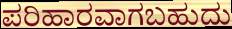
ಪರಿಹಾರವಾಗಬಹುದು